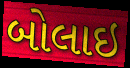
બોલાઇ